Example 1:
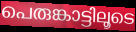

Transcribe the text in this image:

പെരുങ്കാട്ടിലൂടെ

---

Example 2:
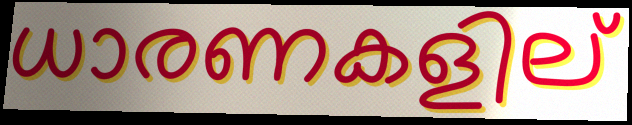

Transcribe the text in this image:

ധാരണകളില്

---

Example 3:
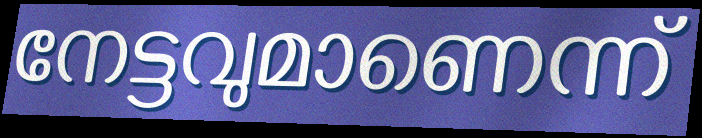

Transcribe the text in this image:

നേട്ടവുമാണെന്ന്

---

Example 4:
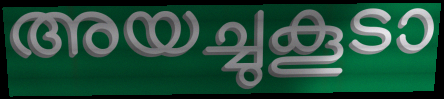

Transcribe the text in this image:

അയച്ചുകൂടാ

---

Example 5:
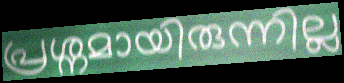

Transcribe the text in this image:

പ്രശ്നമായിരുന്നില്ല